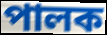
পালক